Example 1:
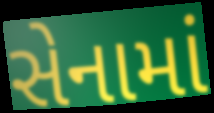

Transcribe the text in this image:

સેનામાં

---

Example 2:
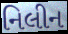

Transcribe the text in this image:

નિલીન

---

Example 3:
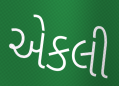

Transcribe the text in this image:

એકલી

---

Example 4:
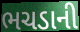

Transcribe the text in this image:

ભચડાની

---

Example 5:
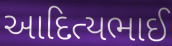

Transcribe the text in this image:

આદિત્યભાઈ